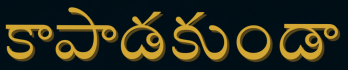
కాపాడకుండా